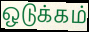
ஒடுக்கம்